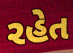
રહેત